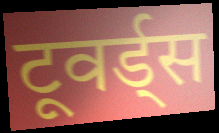
टूवर्ड्स